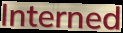
Interned